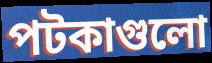
পটকাগুলো